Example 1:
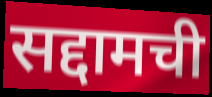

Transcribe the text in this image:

सद्दामची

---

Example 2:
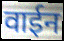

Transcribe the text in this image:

वाईन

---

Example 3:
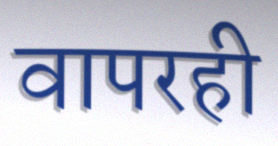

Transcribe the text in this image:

वापरही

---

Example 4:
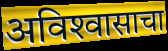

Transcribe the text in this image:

अविश्‍वासाचा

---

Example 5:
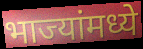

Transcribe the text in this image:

भाज्यांमध्ये